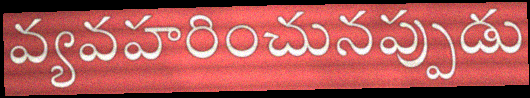
వ్యవహరించునప్పుడు